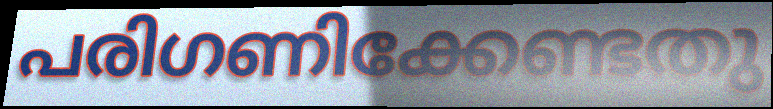
പരിഗണിക്കേണ്ടതു